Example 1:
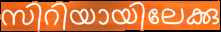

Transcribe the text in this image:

സിറിയായിലേക്കു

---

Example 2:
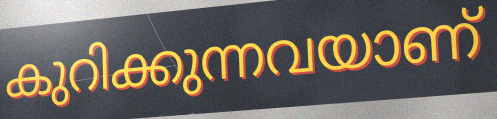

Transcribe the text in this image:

കുറിക്കുന്നവയാണ്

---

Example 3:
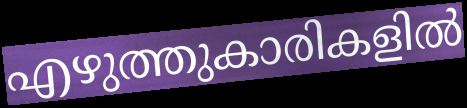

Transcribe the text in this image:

എഴുത്തുകാരികളിൽ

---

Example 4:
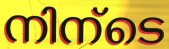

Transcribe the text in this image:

നിന്ടെ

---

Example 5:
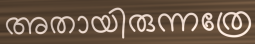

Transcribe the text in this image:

അതായിരുന്നത്രേ